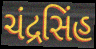
ચંદ્રસિંહ